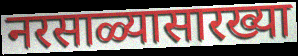
नरसाळ्यासारख्या